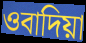
ওবাদিয়া